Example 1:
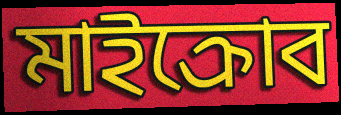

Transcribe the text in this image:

মাইক্রোব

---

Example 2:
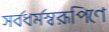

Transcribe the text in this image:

সর্বধর্মস্বরূপিণে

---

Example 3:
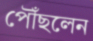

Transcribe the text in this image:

পৌঁছলেন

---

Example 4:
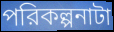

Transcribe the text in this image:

পরিকল্পনাটা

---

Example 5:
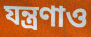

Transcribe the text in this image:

যন্ত্রণাও